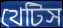
থেটিস